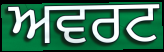
ਅਵਰਟ